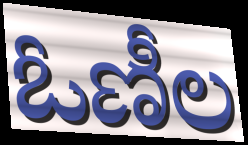
ఓణీల